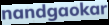
nandgaokar